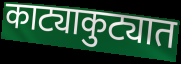
काट्याकुट्यात